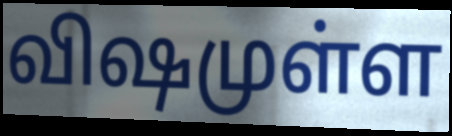
விஷமுள்ள